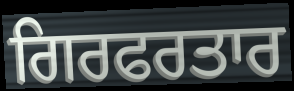
ਗਿਰਫਰਤਾਰ